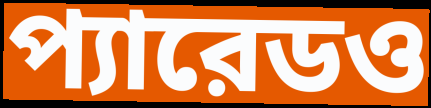
প্যারেডও